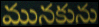
మునకును